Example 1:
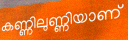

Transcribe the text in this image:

കണ്ണിലുണ്ണിയാണ്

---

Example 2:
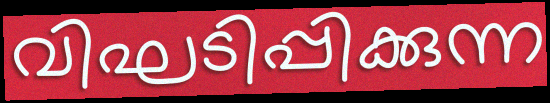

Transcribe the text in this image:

വിഘടിപ്പിക്കുന്ന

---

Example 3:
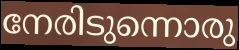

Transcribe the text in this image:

നേരിടുന്നൊരു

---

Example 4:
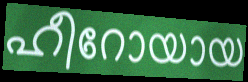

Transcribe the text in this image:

ഹീറോയായ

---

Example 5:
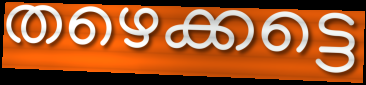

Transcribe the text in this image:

തഴെക്കട്ടെ